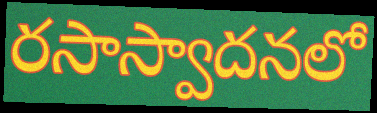
రసాస్వాదనలో